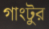
গাংটুর